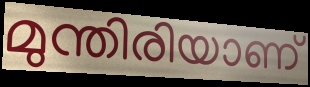
മുന്തിരിയാണ്